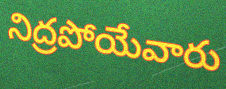
నిద్రపోయేవారు